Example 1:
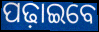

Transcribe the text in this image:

ପଢ଼ାଇବେ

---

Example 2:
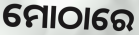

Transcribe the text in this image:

ମୋଠାରେ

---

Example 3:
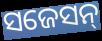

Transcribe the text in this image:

ସଜେସନ୍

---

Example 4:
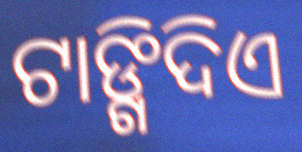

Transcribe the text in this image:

ଟାଙ୍ଗିଦିଏ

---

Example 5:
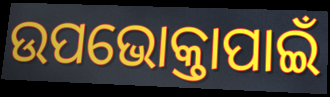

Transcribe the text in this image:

ଉପଭୋକ୍ତାପାଇଁ